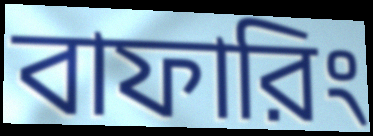
বাফারিং